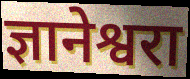
ज्ञानेश्वरा